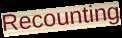
Recounting